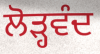
ਲੋੜ੍ਹਵੰਦ